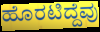
ಹೊರಟಿದ್ದೆವು